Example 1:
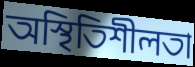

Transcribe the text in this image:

অস্থিতিশীলতা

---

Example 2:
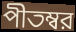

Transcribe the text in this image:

পীতম্বর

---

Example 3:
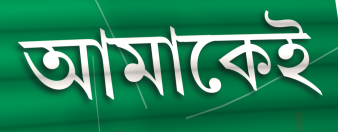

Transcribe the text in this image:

আমাকেই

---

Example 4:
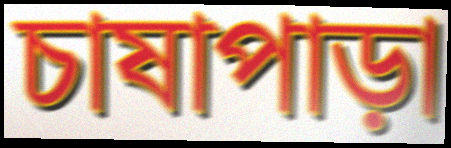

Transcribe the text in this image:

চাষাপাড়া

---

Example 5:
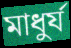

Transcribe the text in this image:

মাধুর্য